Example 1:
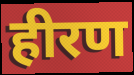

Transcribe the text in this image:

हीरण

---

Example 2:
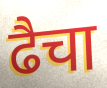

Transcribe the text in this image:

ढैचा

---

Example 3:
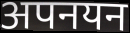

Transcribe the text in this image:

अपनयन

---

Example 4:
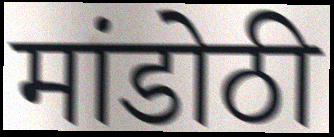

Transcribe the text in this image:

मांडोठी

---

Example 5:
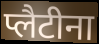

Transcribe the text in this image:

प्लैटीना